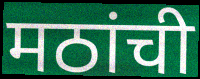
मठांची